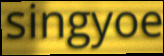
singyoe